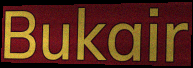
Bukair